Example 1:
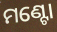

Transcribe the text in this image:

ମଣ୍ଟୋ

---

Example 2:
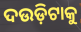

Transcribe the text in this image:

ଦଉଡ଼ିଟାକୁ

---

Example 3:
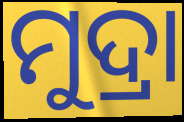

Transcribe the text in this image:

ମୁଦ୍ରା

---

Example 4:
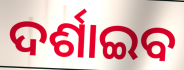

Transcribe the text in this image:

ଦର୍ଶାଇବ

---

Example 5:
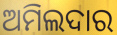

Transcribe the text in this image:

ଅମିଲଦାର